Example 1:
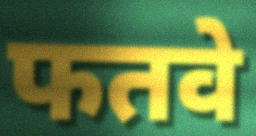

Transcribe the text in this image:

फतवे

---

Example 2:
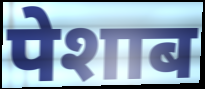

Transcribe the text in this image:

पेशाब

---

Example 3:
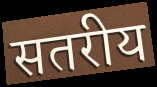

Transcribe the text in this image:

सतरीय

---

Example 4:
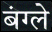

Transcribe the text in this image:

बंग्ले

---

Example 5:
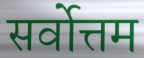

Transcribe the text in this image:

सर्वोत्तम